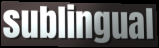
sublingual